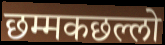
छम्मकछल्लो